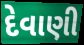
દેવાણી